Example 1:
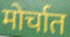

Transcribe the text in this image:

मोर्चात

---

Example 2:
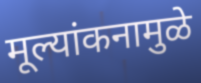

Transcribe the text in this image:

मूल्यांकनामुळे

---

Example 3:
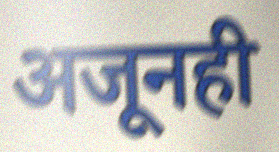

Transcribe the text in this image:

अजूनही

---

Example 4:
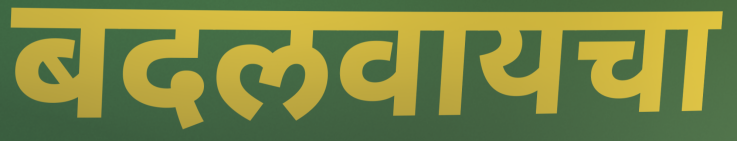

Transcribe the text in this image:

बदलवायचा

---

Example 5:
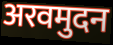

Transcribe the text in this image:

अरवमुदन